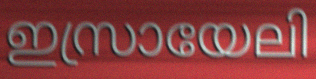
ഇസ്രായേലി